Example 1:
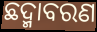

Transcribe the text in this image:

ଛଦ୍ମାବରଣ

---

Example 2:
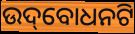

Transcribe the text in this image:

ଉଦ୍‌ବୋଧନଟି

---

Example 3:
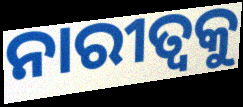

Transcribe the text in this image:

ନାରୀତ୍ୱକୁ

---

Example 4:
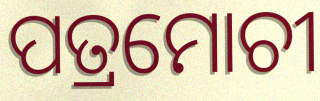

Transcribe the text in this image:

ପତ୍ରମୋଚୀ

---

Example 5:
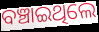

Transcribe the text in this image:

ବଞ୍ଚାଇଥିଲେ